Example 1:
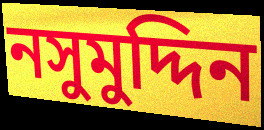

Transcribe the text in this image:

নসুমুদ্দিন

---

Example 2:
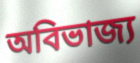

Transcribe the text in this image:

অবিভাজ্য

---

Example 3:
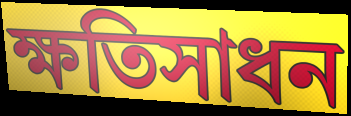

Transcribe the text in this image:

ক্ষতিসাধন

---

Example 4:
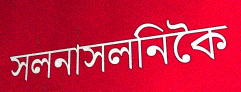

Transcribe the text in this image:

সলনাসলনিকৈ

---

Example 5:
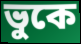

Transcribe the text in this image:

ভুকে